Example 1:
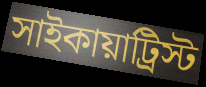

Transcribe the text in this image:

সাইকায়াট্রিস্ট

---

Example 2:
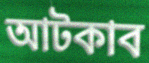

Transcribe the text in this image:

আটকাব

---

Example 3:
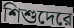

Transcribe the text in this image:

শিশুদেরে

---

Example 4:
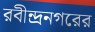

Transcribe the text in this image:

রবীন্দ্রনগরের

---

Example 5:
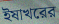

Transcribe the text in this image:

ইষাখরের